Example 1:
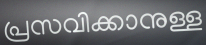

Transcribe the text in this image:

പ്രസവിക്കാനുള്ള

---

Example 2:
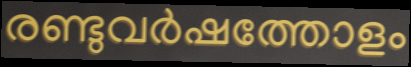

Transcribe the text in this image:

രണ്ടുവർഷത്തോളം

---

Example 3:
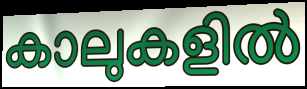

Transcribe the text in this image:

കാലുകളിൽ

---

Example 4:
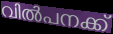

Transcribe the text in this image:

വിൽപനക്ക്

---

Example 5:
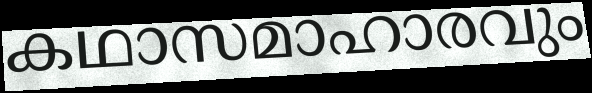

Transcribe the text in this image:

കഥാസമാഹാരവും